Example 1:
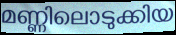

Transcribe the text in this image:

മണ്ണിലൊടുക്കിയ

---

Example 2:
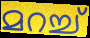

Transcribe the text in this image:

മറച്ച്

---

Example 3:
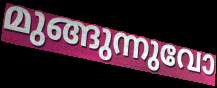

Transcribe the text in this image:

മുങ്ങുന്നുവോ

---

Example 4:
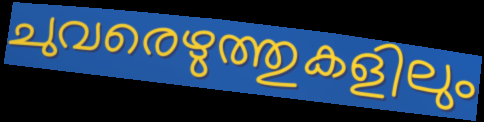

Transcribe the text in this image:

ചുവരെഴുത്തുകളിലും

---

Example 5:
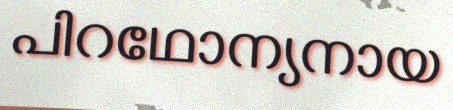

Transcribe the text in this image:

പിറഥോന്യനായ